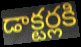
డాక్టర్లకి